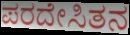
ಪರದೇಸಿತನ